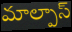
మాల్పాస్